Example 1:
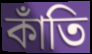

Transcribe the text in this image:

কাঁতি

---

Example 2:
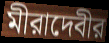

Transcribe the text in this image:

মীরাদেবীর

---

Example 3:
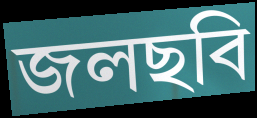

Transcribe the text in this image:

জলছবি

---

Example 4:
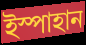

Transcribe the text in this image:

ইস্পাহান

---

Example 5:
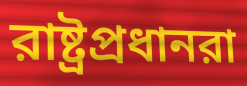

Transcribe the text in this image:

রাষ্ট্রপ্রধানরা